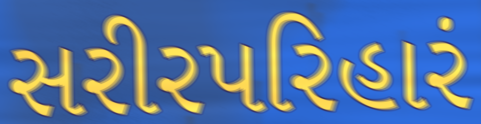
સરીરપરિહારં